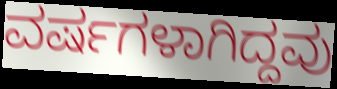
ವರ್ಷಗಳಾಗಿದ್ದವು